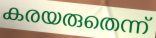
കരയരുതെന്ന്